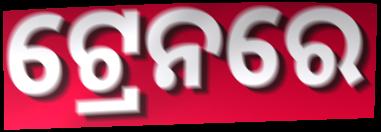
ଟ୍ରେନରେ